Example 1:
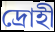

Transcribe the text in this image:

দ্রোহী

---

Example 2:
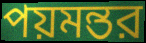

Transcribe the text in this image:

পয়মন্তর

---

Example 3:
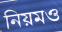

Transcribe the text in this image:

নিয়মও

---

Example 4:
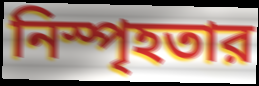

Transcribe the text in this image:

নিস্পৃহতার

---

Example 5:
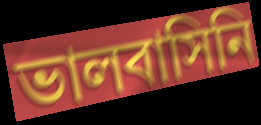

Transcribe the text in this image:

ভালবাসিনি